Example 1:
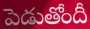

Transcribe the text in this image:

పెడుతోందీ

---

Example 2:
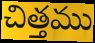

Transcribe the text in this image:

చిత్తము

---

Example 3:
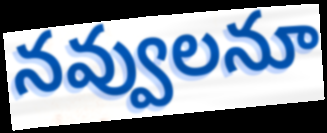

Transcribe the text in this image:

నవ్వులనూ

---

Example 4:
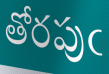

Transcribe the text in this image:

తోరపుఁ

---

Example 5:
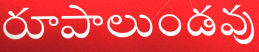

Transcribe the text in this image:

రూపాలుండవు